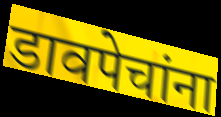
डावपेचांना